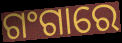
ଗଂଗାରେ